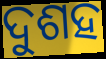
ଦୁଶହ